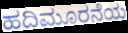
ಹದಿಮೂರನೆಯ